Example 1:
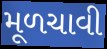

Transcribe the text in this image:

મૂળચાવી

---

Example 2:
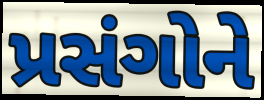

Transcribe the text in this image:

પ્રસંગોને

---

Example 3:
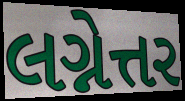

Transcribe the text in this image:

લગ્નેત્તર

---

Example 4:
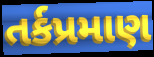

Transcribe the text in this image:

તર્કપ્રમાણ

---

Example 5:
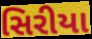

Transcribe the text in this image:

સિરીયા